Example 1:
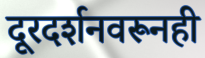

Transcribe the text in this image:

दूरदर्शनवरूनही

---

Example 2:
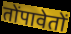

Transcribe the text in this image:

तोंपावेतों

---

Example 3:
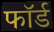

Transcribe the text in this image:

फॉर्ड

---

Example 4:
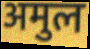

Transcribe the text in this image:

अमुल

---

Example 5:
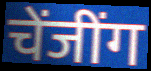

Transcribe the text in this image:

चेंजींग